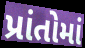
પ્રાંતોમાં